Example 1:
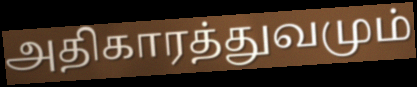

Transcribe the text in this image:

அதிகாரத்துவமும்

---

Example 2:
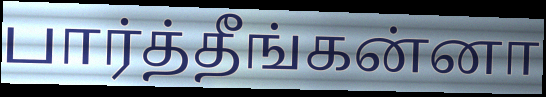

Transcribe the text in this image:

பார்த்தீங்கன்னா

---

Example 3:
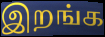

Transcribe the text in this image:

இறங்க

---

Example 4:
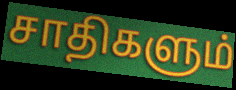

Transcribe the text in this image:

சாதிகளும்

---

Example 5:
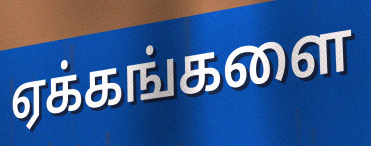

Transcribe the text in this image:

ஏக்கங்களை